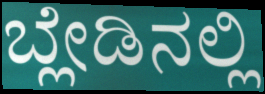
ಬ್ಲೇಡಿನಲ್ಲಿ